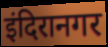
इंदिरानगर